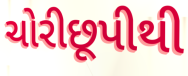
ચોરીછૂપીથી